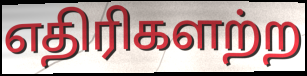
எதிரிகளற்ற